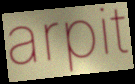
arpit